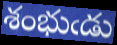
శంభుఁడు